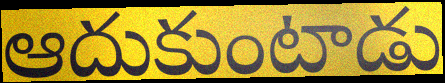
ఆదుకుంటాడు